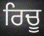
ਰਿਚੂ